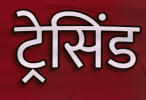
ट्रेसिंड